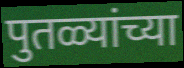
पुतळ्यांच्या